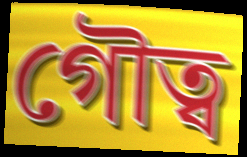
গৌত্ব